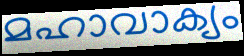
മഹാവാക്യം